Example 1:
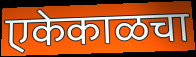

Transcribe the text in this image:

एकेकाळचा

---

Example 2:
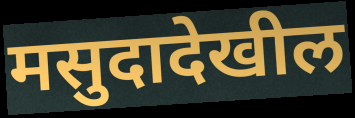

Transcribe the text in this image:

मसुदादेखील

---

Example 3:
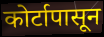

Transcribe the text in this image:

कोर्टापासून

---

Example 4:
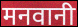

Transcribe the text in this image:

मनवानी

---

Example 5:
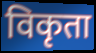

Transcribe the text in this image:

विकृता